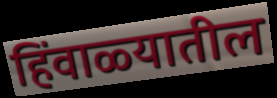
हिंवाळ्यातील